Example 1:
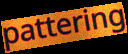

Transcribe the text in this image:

pattering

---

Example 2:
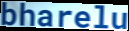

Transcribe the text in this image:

bharelu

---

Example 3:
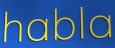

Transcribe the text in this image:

habla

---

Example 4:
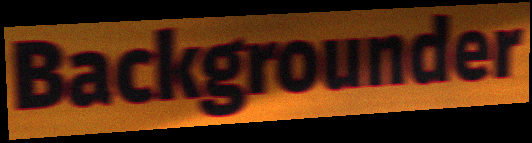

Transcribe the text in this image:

Backgrounder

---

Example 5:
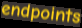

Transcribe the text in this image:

endpoints